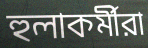
হুলাকর্মীরা